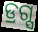
ଡ୍ରଗ୍ସ